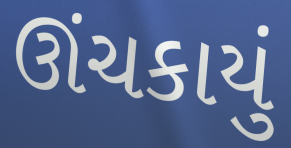
ઊંચકાયું